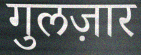
गुलज़ार